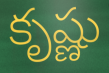
కృష్ణు